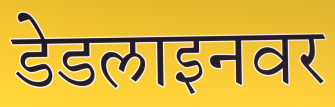
डेडलाइनवर